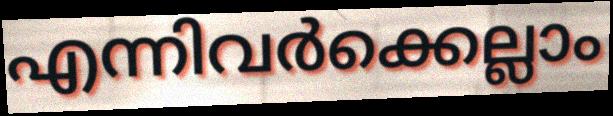
എന്നിവർക്കെല്ലാം